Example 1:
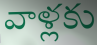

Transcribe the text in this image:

వాళ్లకు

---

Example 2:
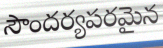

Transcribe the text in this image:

సౌందర్యపరమైన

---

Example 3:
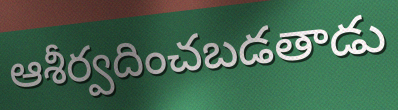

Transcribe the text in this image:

ఆశీర్వదించబడతాడు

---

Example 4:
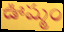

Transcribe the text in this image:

ఊష్మం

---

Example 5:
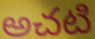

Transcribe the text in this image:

అచటి